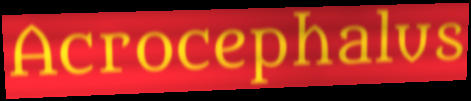
Acrocephalus